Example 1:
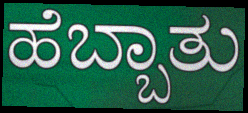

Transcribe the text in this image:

ಹೆಬ್ಬಾತು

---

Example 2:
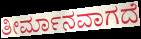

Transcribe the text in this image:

ತೀರ್ಮಾನವಾಗದೆ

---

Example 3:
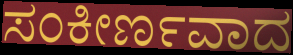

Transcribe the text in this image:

ಸಂಕೀರ್ಣವಾದ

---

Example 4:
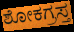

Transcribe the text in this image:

ಶೋಕಗ್ರಸ್ತ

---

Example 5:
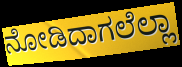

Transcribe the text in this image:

ನೋಡಿದಾಗಲೆಲ್ಲಾ